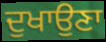
ਦੁਖਾਉਣਾ